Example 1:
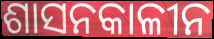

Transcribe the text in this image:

ଶାସନକାଳୀନ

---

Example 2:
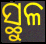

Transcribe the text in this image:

ସ୍ଥୁଳ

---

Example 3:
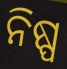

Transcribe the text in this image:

ନିଷ୍ପ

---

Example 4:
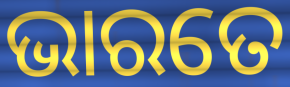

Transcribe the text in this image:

ଭାରତେ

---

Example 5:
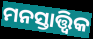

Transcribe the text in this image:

ମନସ୍ତାତ୍ତ୍ଵିକ